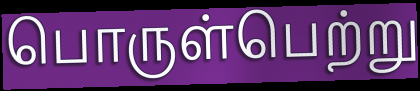
பொருள்பெற்று